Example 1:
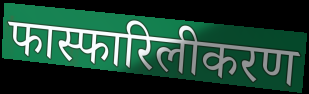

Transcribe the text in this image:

फास्फारिलीकरण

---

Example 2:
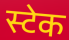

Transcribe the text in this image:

स्टेक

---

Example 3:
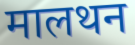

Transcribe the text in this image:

मालथन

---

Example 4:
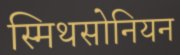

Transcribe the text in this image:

स्मिथसोनियन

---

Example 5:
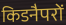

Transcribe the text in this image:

किडनैपरों